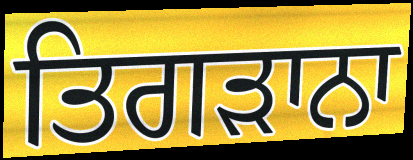
ਤਿਗੜਾਨਾ